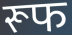
रूफ